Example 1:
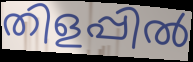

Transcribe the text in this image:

തിളപ്പിൽ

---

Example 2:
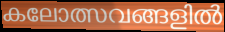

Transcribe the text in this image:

കലോത്സവങ്ങളിൽ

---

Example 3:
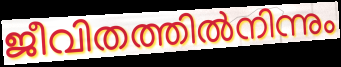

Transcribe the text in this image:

ജീവിതത്തിൽനിന്നും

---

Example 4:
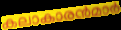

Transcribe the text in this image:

കലാകാരൻമാർ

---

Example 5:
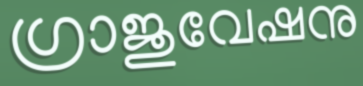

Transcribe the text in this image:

ഗ്രാജുവേഷനു